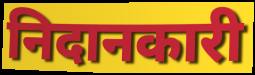
निदानकारी